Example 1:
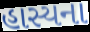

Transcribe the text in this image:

હાસ્યના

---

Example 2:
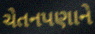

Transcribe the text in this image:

ચેતનપણાને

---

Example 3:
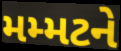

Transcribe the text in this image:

મમ્મટને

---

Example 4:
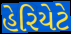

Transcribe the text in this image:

હેરિયેટે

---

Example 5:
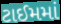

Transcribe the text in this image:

ટાઈમમાં